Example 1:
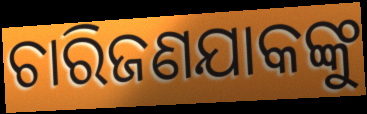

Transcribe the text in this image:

ଚାରିଜଣଯାକଙ୍କୁ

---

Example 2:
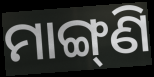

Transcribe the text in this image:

ମାଙ୍ଗ୍‌ଣି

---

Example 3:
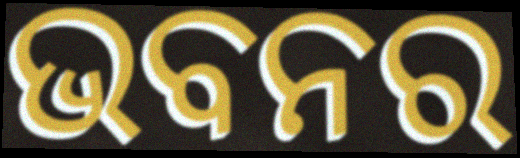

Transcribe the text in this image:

ଭବନର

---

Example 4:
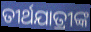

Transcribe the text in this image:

ତୀର୍ଥଯାତ୍ରୀଙ୍କ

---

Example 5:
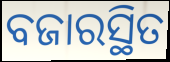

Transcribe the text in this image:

ବଜାରସ୍ଥିତ